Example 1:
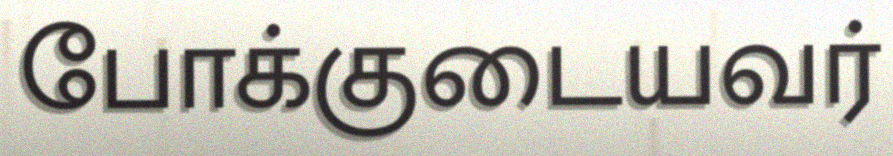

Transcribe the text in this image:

போக்குடையவர்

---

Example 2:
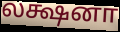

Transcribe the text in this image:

லக்ஷனா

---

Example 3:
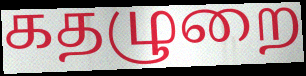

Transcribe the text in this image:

கதழுறை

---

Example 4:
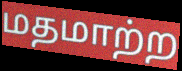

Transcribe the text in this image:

மதமாற்ற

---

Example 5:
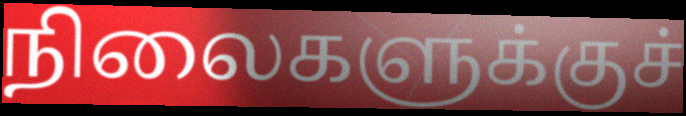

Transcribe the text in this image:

நிலைகளுக்குச்